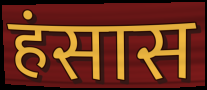
हंसास